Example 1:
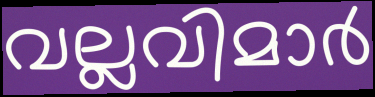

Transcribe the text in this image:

വല്ലവിമാർ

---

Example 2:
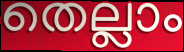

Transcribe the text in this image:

തെല്ലാം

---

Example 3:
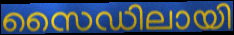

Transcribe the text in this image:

സൈഡിലായി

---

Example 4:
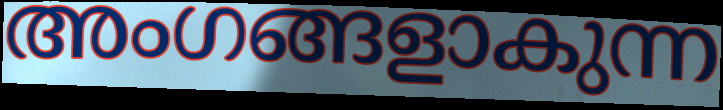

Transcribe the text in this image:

അംഗങ്ങളാകുന്ന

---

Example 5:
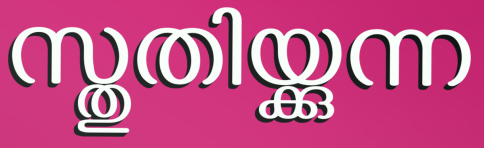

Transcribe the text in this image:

സ്തുതിയ്ക്കുന്ന